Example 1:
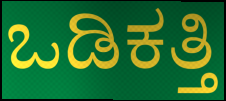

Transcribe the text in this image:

ಒಡಿಕತ್ತಿ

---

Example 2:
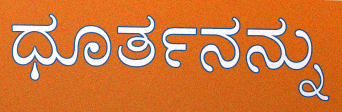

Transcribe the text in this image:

ಧೂರ್ತನನ್ನು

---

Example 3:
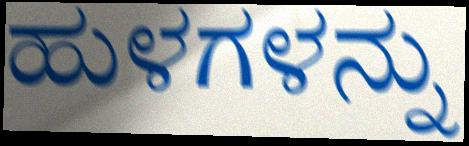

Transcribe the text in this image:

ಹುಳಗಳನ್ನು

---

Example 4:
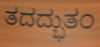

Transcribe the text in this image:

ತದದ್ಭುತಂ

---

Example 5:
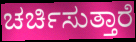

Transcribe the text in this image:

ಚರ್ಚಿಸುತ್ತಾರೆ